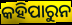
କହିପାରୁନ